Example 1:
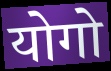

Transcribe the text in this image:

योगो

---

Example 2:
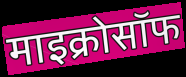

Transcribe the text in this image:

माइक्रोसॉफ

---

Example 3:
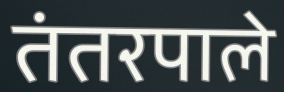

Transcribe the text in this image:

तंतरपाले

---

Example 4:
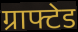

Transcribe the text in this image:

ग्राफ्टेड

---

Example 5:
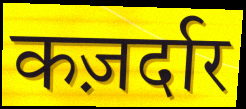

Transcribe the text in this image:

कज़र्दार